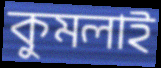
কুমলাই